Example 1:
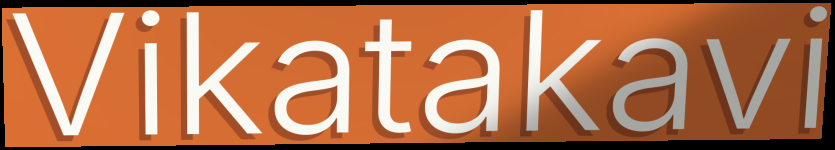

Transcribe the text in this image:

Vikatakavi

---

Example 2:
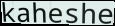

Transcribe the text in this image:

kaheshe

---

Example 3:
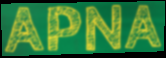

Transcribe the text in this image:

APNA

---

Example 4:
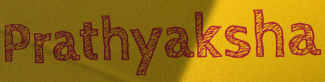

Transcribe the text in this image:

Prathyaksha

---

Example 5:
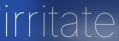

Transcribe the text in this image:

irritate